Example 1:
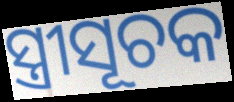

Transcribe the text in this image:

ସ୍ତ୍ରୀସୂଚକ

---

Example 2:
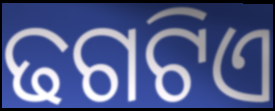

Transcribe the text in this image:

ଢଗଟିଏ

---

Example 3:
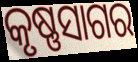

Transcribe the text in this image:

କୃଷ୍ଣସାଗର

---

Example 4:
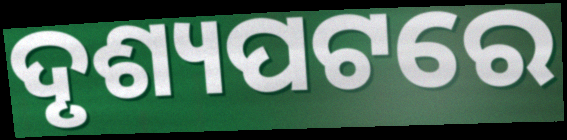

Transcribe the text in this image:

ଦୃଶ୍ୟପଟରେ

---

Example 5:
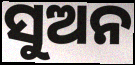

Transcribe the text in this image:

ସୁଅନ